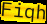
Fiqh